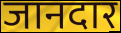
जानदार